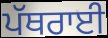
ਪੱਥਰਾਈ